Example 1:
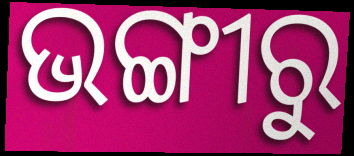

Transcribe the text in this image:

ଭଙ୍ଗୀରୁ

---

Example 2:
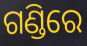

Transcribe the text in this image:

ଗଣ୍ଡିରେ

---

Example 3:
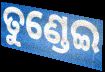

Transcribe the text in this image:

ତୁଣ୍ଡେଇ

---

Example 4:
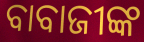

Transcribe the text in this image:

ବାବାଜୀଙ୍କ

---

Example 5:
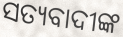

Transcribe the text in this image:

ସତ୍ୟବାଦୀଙ୍କ